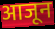
आजून